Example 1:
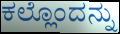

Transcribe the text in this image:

ಕಲ್ಲೊಂದನ್ನು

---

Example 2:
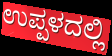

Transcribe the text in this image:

ಉಪ್ಪಳದಲ್ಲಿ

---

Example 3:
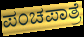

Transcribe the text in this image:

ಪಂಚಪಾತ್ರೆ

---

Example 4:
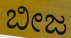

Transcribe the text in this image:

ಬೀಜ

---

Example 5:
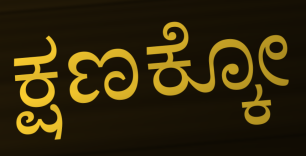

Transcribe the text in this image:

ಕ್ಷಣಕ್ಕೋ